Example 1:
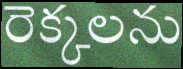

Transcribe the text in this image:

రెక్కలను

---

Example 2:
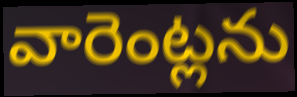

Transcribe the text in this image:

వారెంట్లను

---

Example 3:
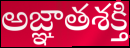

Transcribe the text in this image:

అజ్ఞాతశక్తి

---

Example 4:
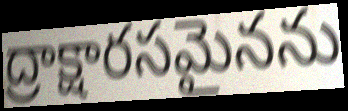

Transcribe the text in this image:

ద్రాక్షారసమైనను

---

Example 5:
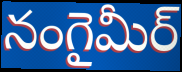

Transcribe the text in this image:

నంగైమీర్